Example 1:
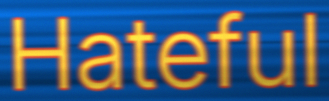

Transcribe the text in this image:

Hateful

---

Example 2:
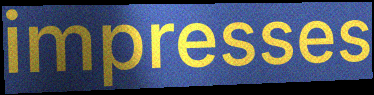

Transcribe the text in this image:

impresses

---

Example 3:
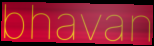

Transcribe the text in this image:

bhavan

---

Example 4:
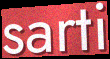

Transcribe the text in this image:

sarti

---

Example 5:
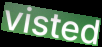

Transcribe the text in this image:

visted